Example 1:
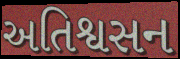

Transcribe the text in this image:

અતિશ્વસન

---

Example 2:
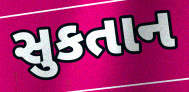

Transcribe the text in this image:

સુકતાન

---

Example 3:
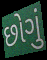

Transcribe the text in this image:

છોગું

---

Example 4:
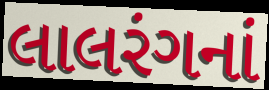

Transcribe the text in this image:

લાલરંગનાં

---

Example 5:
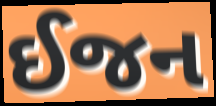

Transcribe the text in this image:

ઈજન